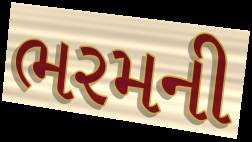
ભરમની